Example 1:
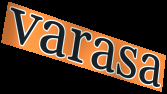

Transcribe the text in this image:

varasa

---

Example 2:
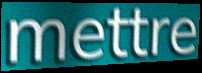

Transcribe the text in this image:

mettre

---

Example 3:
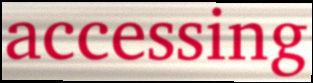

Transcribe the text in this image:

accessing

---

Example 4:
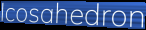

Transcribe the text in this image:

Icosahedron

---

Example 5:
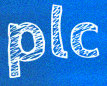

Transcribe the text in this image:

plc